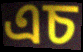
এচ